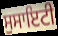
ਸੁਸਾਇਟੀ